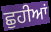
ਛੁਹੀਆਂ